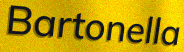
Bartonella